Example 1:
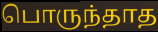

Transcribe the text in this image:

பொருந்தாத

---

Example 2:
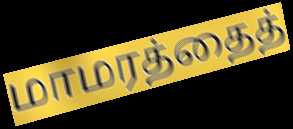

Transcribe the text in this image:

மாமரத்தைத்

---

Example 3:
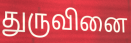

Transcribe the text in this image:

துருவினை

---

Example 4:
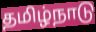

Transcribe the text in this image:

தமிழ்நாடு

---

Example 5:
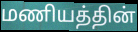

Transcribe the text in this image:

மணியத்தின்